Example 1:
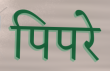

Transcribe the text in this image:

पिपरे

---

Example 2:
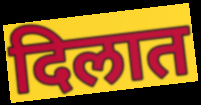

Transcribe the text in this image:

दिलात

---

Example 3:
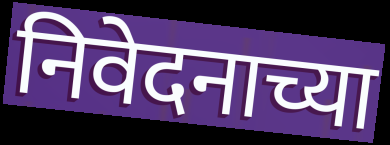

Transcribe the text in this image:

निवेदनाच्या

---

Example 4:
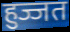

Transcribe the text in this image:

हुज्जत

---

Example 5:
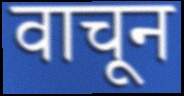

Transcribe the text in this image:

वाचून